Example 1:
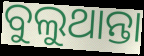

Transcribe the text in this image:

ବୁଲୁଥାନ୍ତା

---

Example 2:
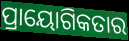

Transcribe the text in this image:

ପ୍ରାୟୋଗିକତାର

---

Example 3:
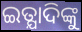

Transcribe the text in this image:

ଇତ୍ଯାଦିଙ୍କୁ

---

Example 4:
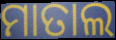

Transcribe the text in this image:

ମାତାଲ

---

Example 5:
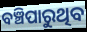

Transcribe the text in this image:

ବଞ୍ଚିପାରୁଥିବ